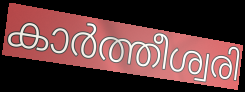
കാർത്തീശ്വരി